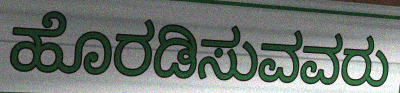
ಹೊರಡಿಸುವವರು